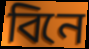
বিনে